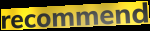
recommend